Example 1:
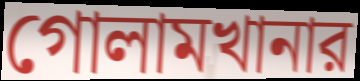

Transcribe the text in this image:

গোলামখানার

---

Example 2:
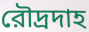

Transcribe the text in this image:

রৌদ্রদাহ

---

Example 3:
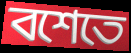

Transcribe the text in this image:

বশেতে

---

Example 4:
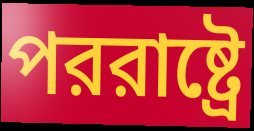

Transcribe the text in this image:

পররাষ্ট্রে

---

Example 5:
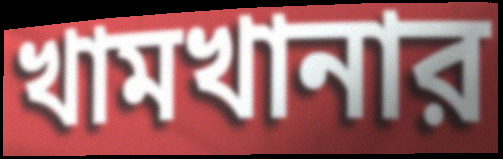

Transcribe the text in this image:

খামখানার